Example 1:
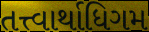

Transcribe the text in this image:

તત્ત્વાર્થાધિગમ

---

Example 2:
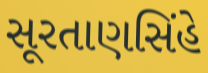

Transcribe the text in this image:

સૂરતાણસિંહે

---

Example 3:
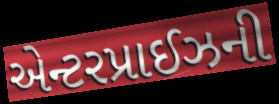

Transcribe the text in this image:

એન્ટરપ્રાઈઝની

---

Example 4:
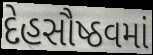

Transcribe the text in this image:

દેહસૌષ્ઠવમાં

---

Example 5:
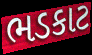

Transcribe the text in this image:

ભડકાટ